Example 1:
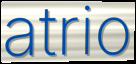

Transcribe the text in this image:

atrio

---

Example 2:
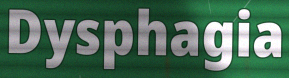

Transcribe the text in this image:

Dysphagia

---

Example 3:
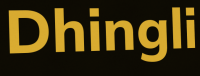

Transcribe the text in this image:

Dhingli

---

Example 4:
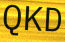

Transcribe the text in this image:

QKD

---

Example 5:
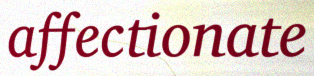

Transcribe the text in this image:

affectionate